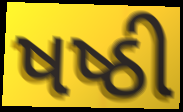
ષષ્ઠી